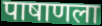
पाषाणला